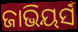
ଜାଭିୟର୍ସ